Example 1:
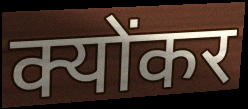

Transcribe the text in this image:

क्योंकर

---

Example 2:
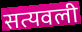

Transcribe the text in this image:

सत्यवली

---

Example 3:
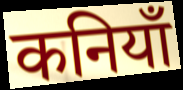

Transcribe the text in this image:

कनियाँ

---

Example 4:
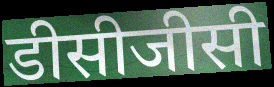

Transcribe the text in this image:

डीसीजीसी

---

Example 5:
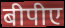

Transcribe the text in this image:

बीपीए